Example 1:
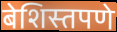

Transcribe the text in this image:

बेशिस्तपणे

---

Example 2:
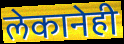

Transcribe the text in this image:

लेकानेही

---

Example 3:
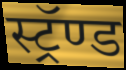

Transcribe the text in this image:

स्ट्रॅण्ड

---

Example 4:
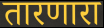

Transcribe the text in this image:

तारणारा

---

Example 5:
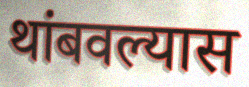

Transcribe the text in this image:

थांबवल्यास